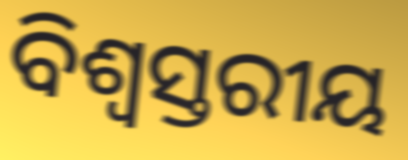
ବିଶ୍ଵସ୍ତରୀୟ